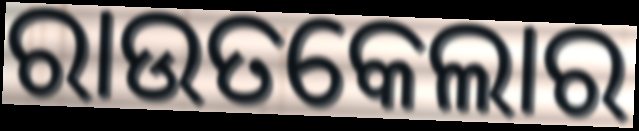
ରାଉତକେଲାର